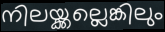
നിലയ്ക്കല്ലെങ്കിലും